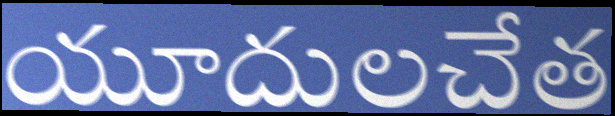
యూదులచేత